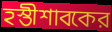
হস্তীশাবকের